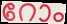
റോം